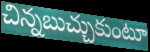
చిన్నబుచ్చుకుంటూ